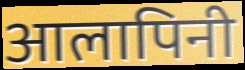
आलापिनी